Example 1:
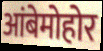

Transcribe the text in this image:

आंबेमोहोर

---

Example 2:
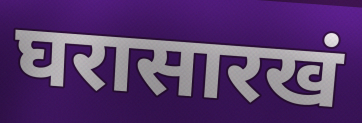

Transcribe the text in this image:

घरासारखं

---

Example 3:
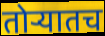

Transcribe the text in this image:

तोऱ्यातच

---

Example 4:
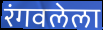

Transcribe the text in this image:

रंगवलेला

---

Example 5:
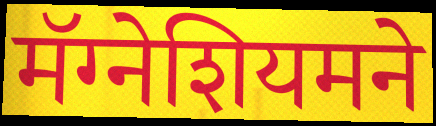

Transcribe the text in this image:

मॅग्नेशियमने